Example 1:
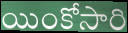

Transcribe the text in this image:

యింకోసారి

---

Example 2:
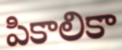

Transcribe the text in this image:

పికాలికా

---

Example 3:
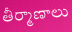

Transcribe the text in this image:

తీర్మాణాలు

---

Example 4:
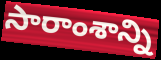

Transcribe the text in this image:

సారాంశాన్ని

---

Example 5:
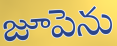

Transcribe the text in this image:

జూపెను